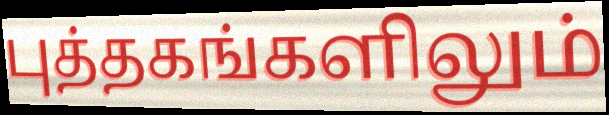
புத்தகங்களிலும்